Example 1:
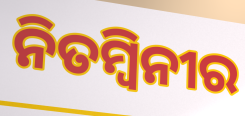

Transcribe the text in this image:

ନିତମ୍ବିନୀର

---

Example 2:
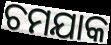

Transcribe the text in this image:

ଚମଯାକ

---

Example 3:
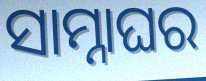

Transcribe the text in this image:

ସାମ୍ନାଘର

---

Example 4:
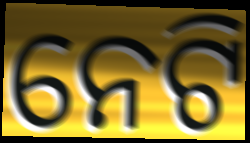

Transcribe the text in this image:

ନେଟି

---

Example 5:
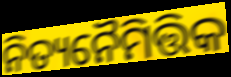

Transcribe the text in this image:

ନିତ୍ୟନୈମିତ୍ତିକ